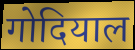
गोदियाल